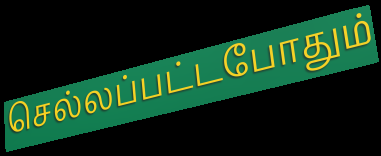
செல்லப்பட்டபோதும்